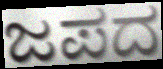
ಜಪದ